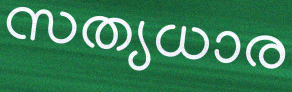
സത്യധാര